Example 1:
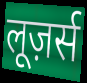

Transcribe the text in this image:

लूज़र्स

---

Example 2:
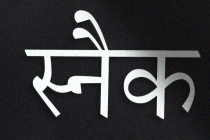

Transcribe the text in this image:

स्नैक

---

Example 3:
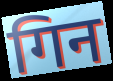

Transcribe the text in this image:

गिन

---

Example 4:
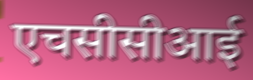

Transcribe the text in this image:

एचसीसीआई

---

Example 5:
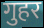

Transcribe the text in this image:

गुहर